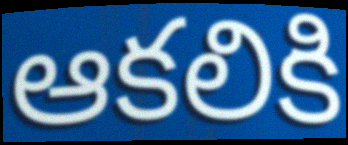
ఆకలికి